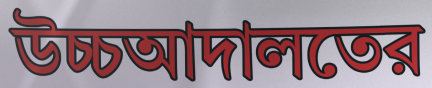
উচ্চআদালতের